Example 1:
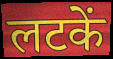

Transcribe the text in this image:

लटकें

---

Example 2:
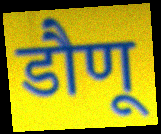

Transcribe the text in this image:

डौणू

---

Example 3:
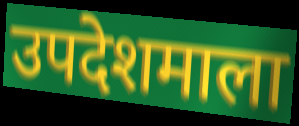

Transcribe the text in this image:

उपदेशमाला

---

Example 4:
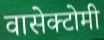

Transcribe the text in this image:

वासेक्टोमी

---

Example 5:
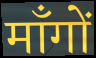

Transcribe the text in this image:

माँगों